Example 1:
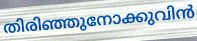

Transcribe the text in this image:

തിരിഞ്ഞുനോക്കുവിൻ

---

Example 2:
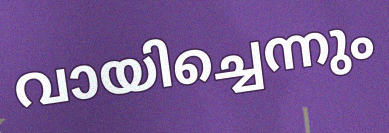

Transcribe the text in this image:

വായിച്ചെന്നും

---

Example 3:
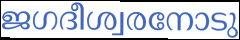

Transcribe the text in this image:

ജഗദീശ്വരനോടു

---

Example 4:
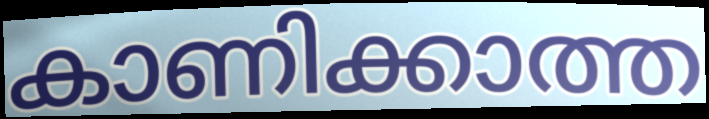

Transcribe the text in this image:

കാണിക്കാത്ത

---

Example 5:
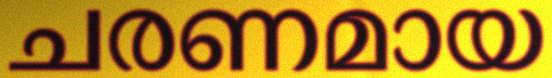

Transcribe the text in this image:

ചരണമായ